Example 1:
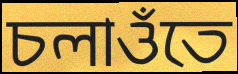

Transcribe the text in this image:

চলাওঁতে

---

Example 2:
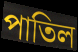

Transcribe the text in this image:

পাতিল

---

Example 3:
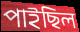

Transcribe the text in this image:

পাইছিল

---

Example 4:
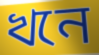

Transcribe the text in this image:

খনে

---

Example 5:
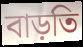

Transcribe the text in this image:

বাড়তি